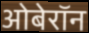
ओबेरॉन